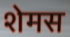
शेमस